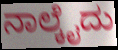
ನಾಲ್ಕೈದು